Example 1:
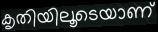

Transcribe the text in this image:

കൃതിയിലൂടെയാണ്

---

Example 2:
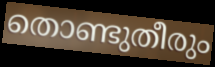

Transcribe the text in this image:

തൊണ്ടുതീരും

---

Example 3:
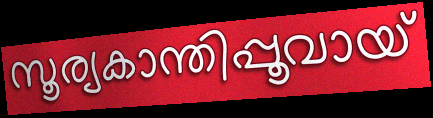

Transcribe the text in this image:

സൂര്യകാന്തിപ്പൂവായ്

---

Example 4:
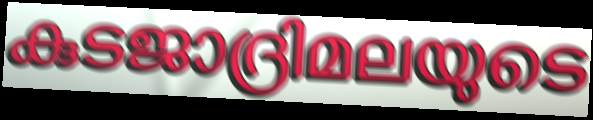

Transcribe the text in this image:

കുടജാദ്രിമലയുടെ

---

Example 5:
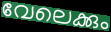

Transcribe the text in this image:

വേലെക്കും